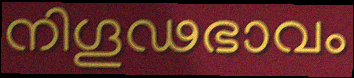
നിഗൂഢഭാവം